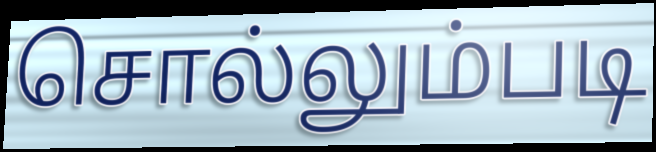
சொல்லும்படி